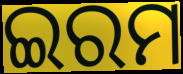
ଇରମ